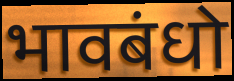
भावबंधो